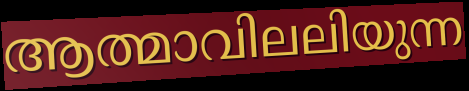
ആത്മാവിലലിയുന്ന